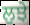
ਲੁਝੇ